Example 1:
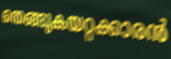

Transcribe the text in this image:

തെങ്ങുകയറ്റക്കാരൻ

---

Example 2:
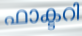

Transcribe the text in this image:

ഫാക്ടറി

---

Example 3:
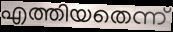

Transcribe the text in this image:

എത്തിയതെന്ന്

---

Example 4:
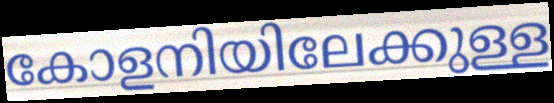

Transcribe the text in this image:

കോളനിയിലേക്കുള്ള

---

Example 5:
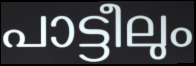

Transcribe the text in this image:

പാട്ടീലും